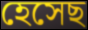
হেসেছ